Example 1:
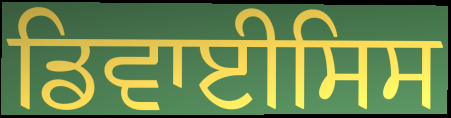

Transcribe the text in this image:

ਡਿਵਾਈਸਿਸ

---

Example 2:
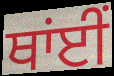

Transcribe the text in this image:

ਥਾਂਈਂ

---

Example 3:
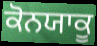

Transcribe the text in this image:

ਕੋਨਯਾਕੂ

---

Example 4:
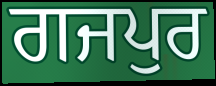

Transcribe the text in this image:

ਗਜਪੁਰ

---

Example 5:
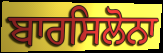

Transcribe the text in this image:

ਬਾਰਸਿਲੋਨਾ